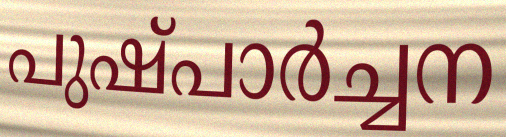
പുഷ്പാർച്ചന